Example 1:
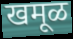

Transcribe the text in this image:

खमूळ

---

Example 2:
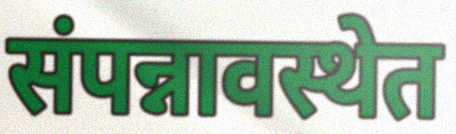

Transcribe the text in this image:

संपन्नावस्थेत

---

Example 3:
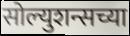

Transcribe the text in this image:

सोल्युशन्सच्या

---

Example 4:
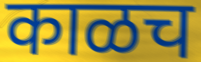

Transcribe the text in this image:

काळच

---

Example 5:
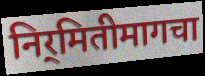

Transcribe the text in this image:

निर्मितीमागचा